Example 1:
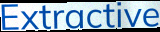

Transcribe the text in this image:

Extractive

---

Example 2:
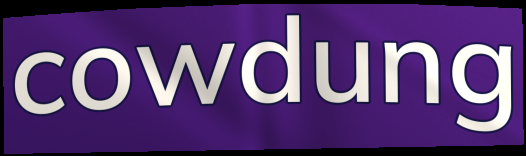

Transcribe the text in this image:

cowdung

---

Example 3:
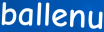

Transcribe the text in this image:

ballenu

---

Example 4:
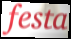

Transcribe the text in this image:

festa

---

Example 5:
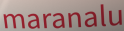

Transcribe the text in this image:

maranalu